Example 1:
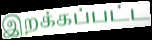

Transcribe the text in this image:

இறக்கப்பட்ட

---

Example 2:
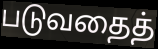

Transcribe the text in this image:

படுவதைத்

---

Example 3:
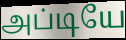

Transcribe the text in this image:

அப்டியே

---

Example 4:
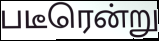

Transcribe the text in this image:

படீரென்று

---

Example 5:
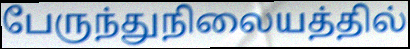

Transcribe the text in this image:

பேருந்துநிலையத்தில்